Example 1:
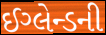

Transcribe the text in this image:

ઈગ્લેન્ડની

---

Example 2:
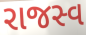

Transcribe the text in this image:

રાજસ્વ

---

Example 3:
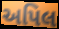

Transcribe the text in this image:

અપિલ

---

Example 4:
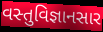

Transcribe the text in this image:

વસ્તુવિજ્ઞાનસાર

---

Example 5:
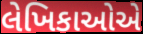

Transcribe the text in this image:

લેખિકાઓએ